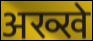
अख्खे